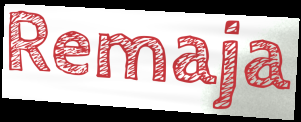
Remaja